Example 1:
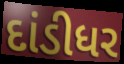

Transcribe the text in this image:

દાંડીધર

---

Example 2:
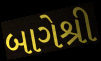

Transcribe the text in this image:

બાગેશ્રી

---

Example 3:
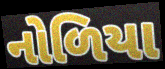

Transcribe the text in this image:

નોળિયા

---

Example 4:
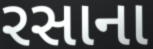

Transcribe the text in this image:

રસાના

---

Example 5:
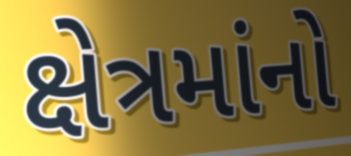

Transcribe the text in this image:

ક્ષેત્રમાંનો